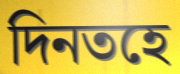
দিনতহে